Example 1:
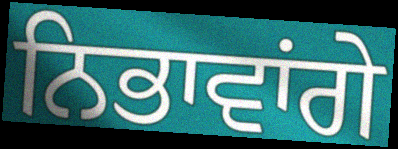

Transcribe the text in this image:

ਨਿਭਾਵਾਂਗੇ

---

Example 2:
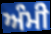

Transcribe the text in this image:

ਅੰਮੀ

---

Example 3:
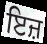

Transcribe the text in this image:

ਇਜ਼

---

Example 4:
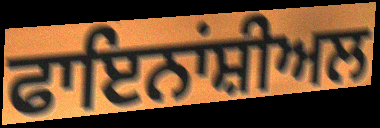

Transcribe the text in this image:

ਫਾਇਨਾਂਸ਼ੀਅਲ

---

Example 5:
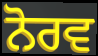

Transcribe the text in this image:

ਨੋਰਵ